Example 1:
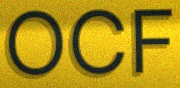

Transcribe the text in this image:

OCF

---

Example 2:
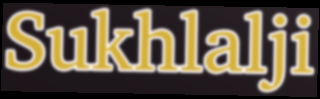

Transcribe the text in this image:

Sukhlalji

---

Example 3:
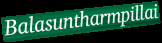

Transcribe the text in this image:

Balasuntharmpillai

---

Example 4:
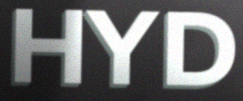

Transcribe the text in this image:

HYD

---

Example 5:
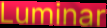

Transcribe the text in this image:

Luminar